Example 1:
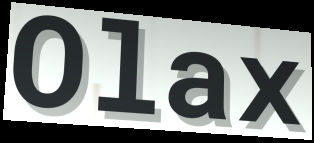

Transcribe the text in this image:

Olax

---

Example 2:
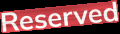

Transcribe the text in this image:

Reserved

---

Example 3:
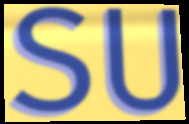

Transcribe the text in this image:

SU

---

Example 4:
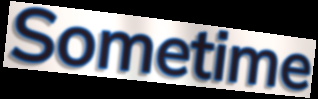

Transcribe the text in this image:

Sometime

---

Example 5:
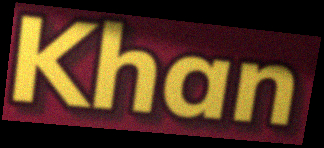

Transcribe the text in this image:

Khan